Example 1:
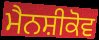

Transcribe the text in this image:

ਮੈਨਸ਼ੀਕੋਵ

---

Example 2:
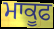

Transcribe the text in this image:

ਮਾਕੂਫ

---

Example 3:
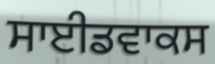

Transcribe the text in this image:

ਸਾਈਡਵਾਕਸ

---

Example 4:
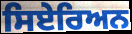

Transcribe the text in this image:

ਸਿਏਰਿਅਨ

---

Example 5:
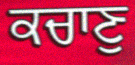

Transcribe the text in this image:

ਕਚਾਣੁ